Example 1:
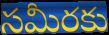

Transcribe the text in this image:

సమీరకు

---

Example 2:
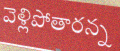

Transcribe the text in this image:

వెళ్లిపోతారన్న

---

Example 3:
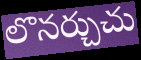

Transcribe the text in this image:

లొనర్చుచు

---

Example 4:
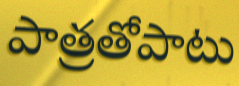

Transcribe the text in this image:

పాత్రతోపాటు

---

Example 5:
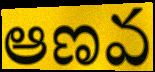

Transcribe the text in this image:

ఆణవ